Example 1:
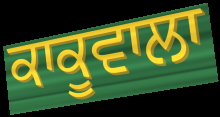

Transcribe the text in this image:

ਕਾਕੂਵਾਲਾ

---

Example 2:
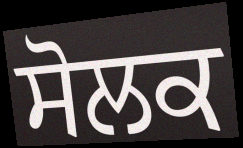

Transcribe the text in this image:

ਸੋਲਕ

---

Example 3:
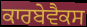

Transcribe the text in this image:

ਕਾਰਬੇਵੈਕਸ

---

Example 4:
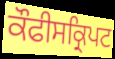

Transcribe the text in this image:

ਕੌਫੀਸਕ੍ਰਿਪਟ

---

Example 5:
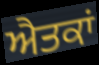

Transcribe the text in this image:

ਐਤਕਾਂ